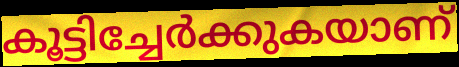
കൂട്ടിച്ചേർക്കുകയാണ്